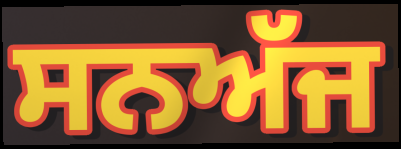
ਸਨਅੱਜ